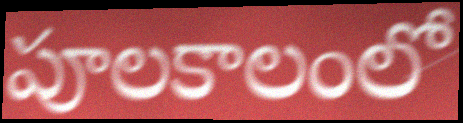
పూలకాలంలో